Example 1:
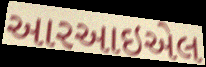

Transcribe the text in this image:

આરઆઇએલ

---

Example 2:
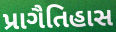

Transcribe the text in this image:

પ્રાગૈતિહાસ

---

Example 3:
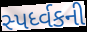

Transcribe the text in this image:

સ્પર્ધ્વકની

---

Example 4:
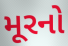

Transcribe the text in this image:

મૂરનો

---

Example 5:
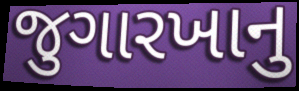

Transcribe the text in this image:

જુગારખાનુ